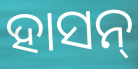
ହାସନ୍